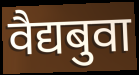
वैद्यबुवा